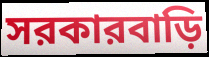
সরকারবাড়ি